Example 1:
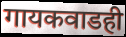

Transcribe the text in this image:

गायकवाडही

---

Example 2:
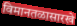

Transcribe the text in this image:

विमानतळासारखे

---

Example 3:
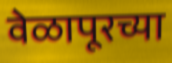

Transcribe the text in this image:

वेळापूरच्या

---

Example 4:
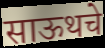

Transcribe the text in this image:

साऊथचे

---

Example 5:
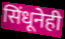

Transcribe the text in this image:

सिंधूनेही